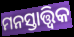
ମନସ୍ତାତ୍ତ୍ୱିକ